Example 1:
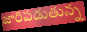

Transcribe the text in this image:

జారిపడుతున్న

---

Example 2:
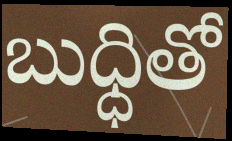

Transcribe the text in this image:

బుధ్ధితో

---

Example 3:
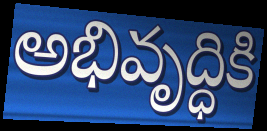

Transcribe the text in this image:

అభివృద్ధికి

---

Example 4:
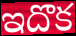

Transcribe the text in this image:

ఇదొక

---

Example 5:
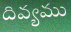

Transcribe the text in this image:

దివ్యము